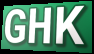
GHK